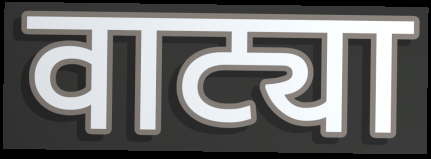
वाट्या